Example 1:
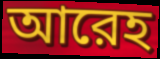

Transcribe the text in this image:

আরেহ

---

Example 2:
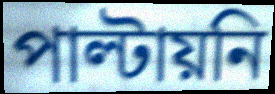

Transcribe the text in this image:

পাল্টায়নি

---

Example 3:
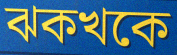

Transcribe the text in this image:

ঝকখকে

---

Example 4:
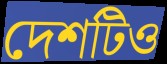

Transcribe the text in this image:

দেশটিও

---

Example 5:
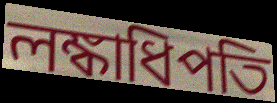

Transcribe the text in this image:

লঙ্কাধিপতি